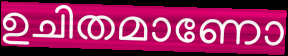
ഉചിതമാണോ